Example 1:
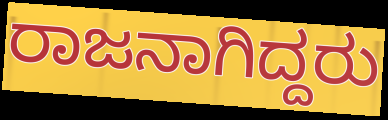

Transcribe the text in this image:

ರಾಜನಾಗಿದ್ದರು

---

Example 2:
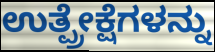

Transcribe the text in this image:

ಉತ್ಪ್ರೇಕ್ಷೆಗಳನ್ನು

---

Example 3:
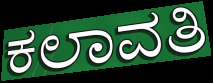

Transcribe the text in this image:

ಕಲಾವತಿ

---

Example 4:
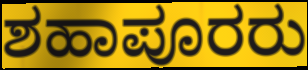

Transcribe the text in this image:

ಶಹಾಪೂರರು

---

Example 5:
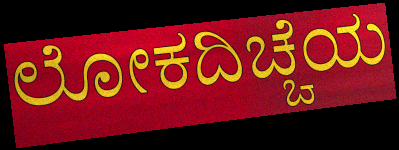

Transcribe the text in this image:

ಲೋಕದಿಚ್ಚೆಯ